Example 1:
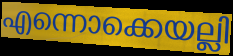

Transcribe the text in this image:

എന്നൊക്കെയല്ലി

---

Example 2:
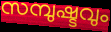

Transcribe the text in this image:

സമ്പുഷ്ടവും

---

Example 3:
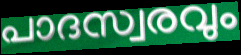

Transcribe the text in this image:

പാദസ്വരവും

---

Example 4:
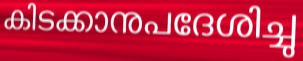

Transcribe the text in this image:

കിടക്കാനുപദേശിച്ചു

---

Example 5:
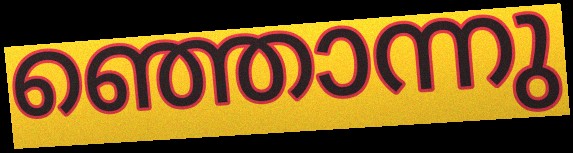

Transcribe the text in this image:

ഞ്ഞൊന്നു